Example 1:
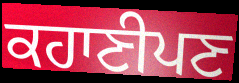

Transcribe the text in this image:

ਕਹਾਣੀਪਣ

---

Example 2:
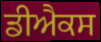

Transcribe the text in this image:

ਡੀਐਕਸ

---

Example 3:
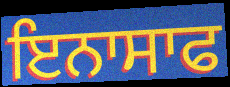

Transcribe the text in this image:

ਇਨਾਸਾਫ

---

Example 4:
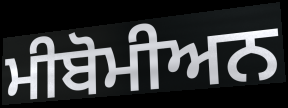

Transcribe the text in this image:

ਮੀਬੋਮੀਅਨ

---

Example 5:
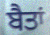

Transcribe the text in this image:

ਬੈਤਾਂ